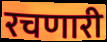
रचणारी